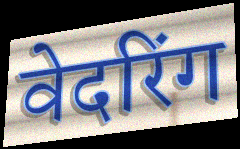
वेदरिंग